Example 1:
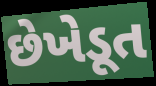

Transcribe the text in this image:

છેખેડૂત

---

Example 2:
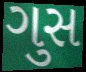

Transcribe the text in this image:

ગુસ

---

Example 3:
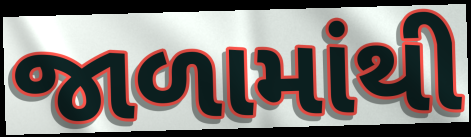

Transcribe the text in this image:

જાળામાંથી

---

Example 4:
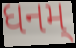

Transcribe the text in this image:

ધનમ્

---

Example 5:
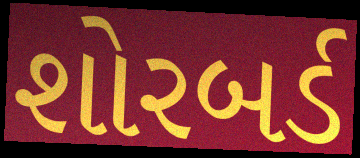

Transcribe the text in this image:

શોરબર્ડ